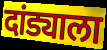
दांड्याला